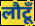
लौटूँ